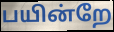
பயின்றே